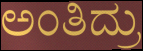
ಅಂತಿದ್ರು